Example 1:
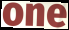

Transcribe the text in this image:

one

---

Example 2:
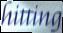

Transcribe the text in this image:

hitting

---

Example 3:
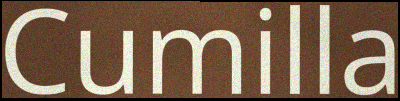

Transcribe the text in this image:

Cumilla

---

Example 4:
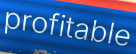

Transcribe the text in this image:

profitable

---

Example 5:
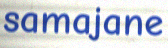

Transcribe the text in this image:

samajane